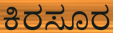
ಕಿರಸೂರ